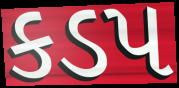
કડપ